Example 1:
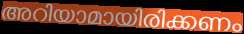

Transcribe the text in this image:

അറിയാമായിരിക്കണം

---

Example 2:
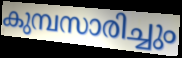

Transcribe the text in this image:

കുമ്പസാരിച്ചും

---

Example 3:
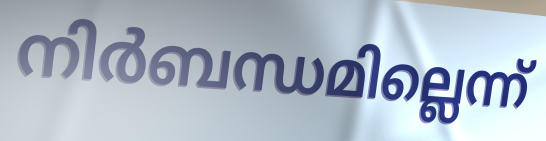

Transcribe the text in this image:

നിർബന്ധമില്ലെന്ന്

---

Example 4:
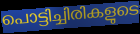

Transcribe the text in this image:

പൊട്ടിച്ചിരികളുടെ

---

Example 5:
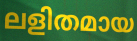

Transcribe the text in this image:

ലളിതമായ